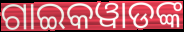
ଗାଇକୱାଡଙ୍କ